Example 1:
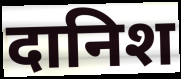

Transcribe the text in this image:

दानिश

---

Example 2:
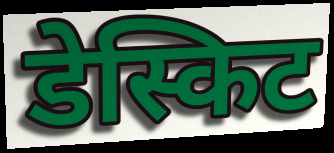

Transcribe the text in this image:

डेस्किट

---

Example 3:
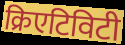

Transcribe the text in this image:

क्रिएटिविटी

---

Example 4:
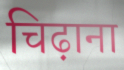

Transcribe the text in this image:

चिढ़ाना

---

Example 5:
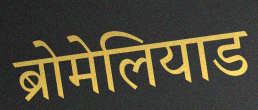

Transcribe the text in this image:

ब्रोमेलियाड